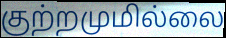
குற்றமுமில்லை